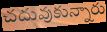
చదువుకున్నారు